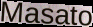
Masato